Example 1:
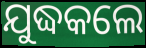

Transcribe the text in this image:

ଯୁଦ୍ଧକଲେ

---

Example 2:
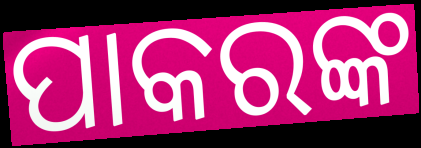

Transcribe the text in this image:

ପାକରଙ୍କ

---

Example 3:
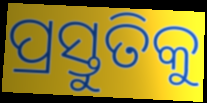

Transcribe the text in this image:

ପ୍ରସ୍ତୁତିକୁ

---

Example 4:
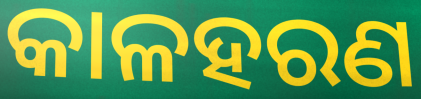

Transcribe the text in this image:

କାଳହରଣ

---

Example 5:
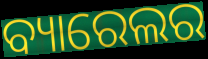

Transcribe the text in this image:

ବ୍ୟାରେଲର